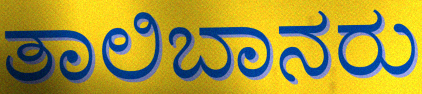
ತಾಲಿಬಾನರು